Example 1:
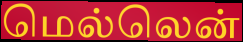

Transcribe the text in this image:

மெல்லென்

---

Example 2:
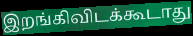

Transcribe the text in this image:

இறங்கிவிடக்கூடாது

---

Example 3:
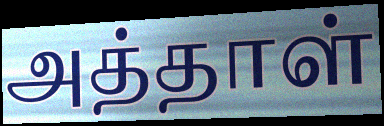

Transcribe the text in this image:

அத்தாள்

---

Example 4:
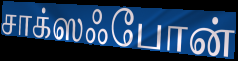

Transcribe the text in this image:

சாக்ஸஃபோன்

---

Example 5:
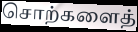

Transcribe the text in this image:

சொற்களைத்